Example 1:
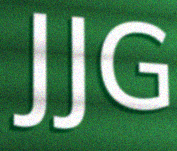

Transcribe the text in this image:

JJG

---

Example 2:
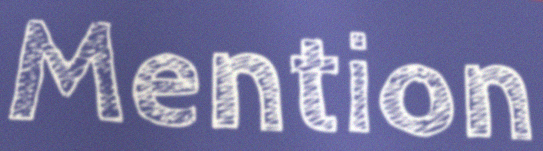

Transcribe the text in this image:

Mention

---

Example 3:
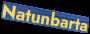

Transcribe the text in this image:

Natunbarta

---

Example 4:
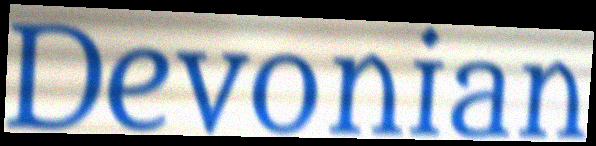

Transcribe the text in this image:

Devonian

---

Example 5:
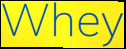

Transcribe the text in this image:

Whey